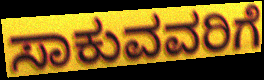
ಸಾಕುವವರಿಗೆ